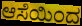
ಆಸೆಯಿಂದ